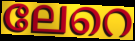
ലേറെ